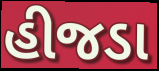
હીજડા